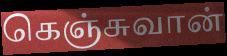
கெஞ்சுவான்